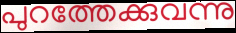
പുറത്തേക്കുവന്നു